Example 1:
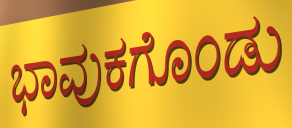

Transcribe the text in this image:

ಭಾವುಕಗೊಂಡು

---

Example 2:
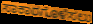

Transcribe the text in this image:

ಸಾಕಾರಗೊಳಿಸಲು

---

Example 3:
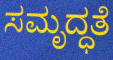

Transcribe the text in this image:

ಸಮೃದ್ಧತೆ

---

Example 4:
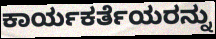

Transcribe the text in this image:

ಕಾರ್ಯಕರ್ತೆಯರನ್ನು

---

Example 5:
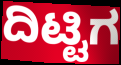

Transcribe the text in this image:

ದಿಟ್ಟಿಗ